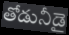
తోడునీడై